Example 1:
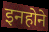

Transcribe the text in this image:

इनहोने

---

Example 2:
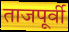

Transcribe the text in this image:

ताजपूर्वी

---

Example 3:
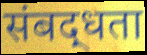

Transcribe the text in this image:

संबद्धता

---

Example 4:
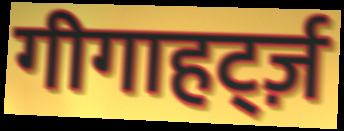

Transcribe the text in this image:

गीगाहर्ट्ज़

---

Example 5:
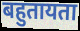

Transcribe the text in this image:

बहुतायता